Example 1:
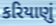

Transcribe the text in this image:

કરિયાણું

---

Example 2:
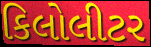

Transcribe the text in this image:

કિલોલીટર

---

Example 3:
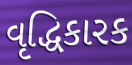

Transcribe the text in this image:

વૃદ્ધિકારક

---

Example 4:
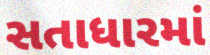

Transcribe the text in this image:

સતાધારમાં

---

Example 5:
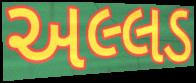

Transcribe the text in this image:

અલ્લડ